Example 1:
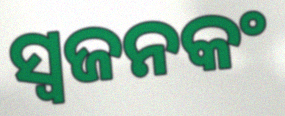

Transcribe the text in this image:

ସ୍ଵଜନକଂ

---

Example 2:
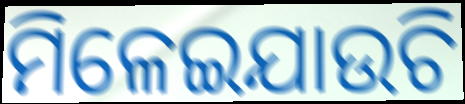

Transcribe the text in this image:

ମିଳେଇଯାଉଚି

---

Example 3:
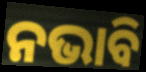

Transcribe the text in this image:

ନଭାବି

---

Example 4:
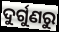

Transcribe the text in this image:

ଦୁର୍ଗୁଣରୁ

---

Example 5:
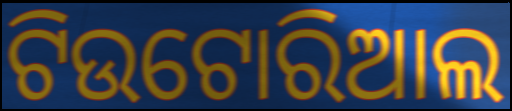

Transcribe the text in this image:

ଟିଉଟୋରିଆଲ